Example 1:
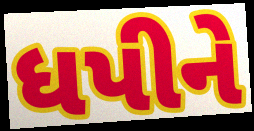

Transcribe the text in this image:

ધપીને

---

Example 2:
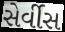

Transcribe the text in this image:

સેર્વીસ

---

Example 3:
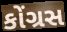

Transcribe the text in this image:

કોંગ્રસ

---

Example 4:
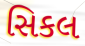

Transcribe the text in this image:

સિકલ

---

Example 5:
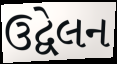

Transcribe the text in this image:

ઉદ્વેલન